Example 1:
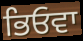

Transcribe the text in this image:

ਭਿਓਵਾ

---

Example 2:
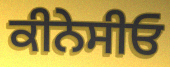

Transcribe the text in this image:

ਕੀਨੇਸੀਓ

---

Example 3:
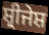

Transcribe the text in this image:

ਸ਼੍ਰੀਜੇਸ਼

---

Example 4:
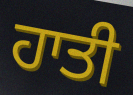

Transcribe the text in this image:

ਹਾਤੀ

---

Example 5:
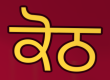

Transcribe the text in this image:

ਕੋਠ